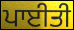
ਪਾਈਤੀ